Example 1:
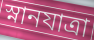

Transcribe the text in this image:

স্নানযাত্রা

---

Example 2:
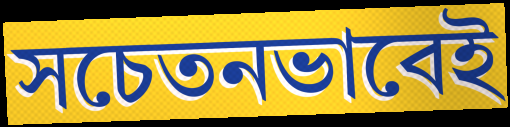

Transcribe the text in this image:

সচেতনভাবেই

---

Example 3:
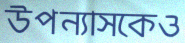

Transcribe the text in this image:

উপন্যাসকেও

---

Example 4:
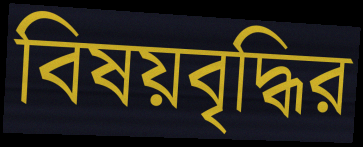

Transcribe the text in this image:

বিষয়বৃদ্ধির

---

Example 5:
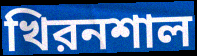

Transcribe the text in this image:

খিরনশাল